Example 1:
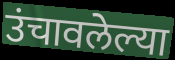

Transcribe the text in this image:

उंचावलेल्या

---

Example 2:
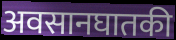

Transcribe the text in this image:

अवसानघातकी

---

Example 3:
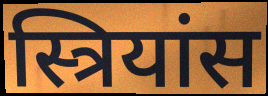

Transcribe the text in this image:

स्त्रियांस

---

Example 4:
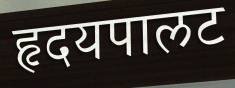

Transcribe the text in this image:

हृदयपालट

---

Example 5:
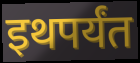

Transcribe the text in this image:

इथपर्यंत